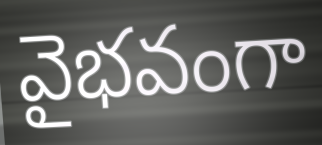
వైభవంగా